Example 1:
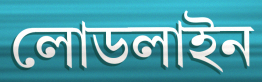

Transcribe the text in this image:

লোডলাইন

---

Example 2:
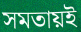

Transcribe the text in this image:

সমতায়ই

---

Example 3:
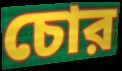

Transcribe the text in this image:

চোর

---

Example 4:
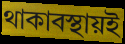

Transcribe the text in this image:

থাকাবস্থায়ই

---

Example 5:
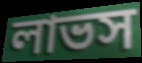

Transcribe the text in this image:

লাভস